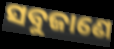
ସବୁଜାଣେ